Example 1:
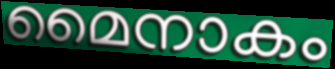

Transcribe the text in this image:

മൈനാകം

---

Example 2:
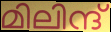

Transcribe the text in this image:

മിലിന്ദ്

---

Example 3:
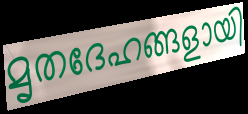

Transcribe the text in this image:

മൃതദേഹങ്ങളായി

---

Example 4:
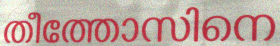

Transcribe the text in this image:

തീത്തോസിനെ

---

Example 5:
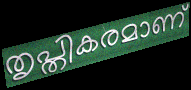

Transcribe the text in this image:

തൃപ്തികരമാണ്